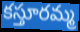
కస్తూరమ్మ